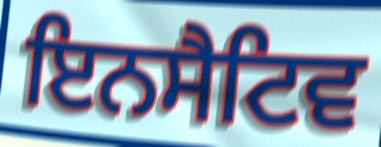
ਇਨਸੈਟਿਵ